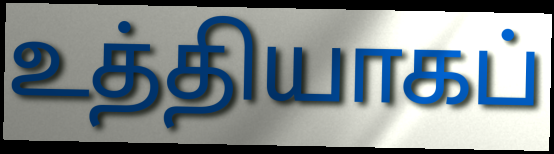
உத்தியாகப்